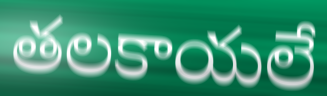
తలకాయలే